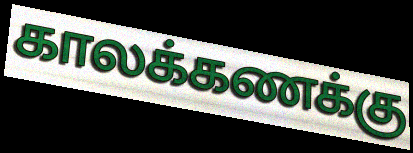
காலக்கணக்கு